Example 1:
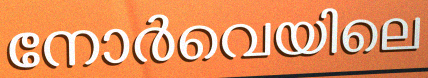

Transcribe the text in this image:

നോർവെയിലെ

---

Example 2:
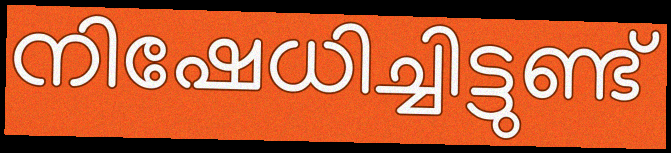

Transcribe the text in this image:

നിഷേധിച്ചിട്ടുണ്ട്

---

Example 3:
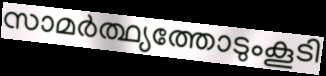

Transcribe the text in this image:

സാമർത്ഥ്യത്തോടുംകൂടി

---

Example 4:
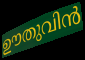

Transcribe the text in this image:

ഊതുവിൻ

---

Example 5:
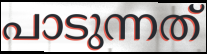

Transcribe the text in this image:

പാടുന്നത്